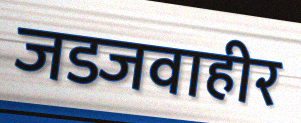
जडजवाहीर